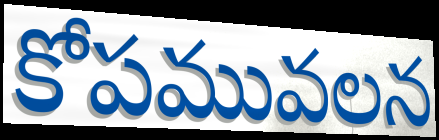
కోపమువలన